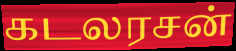
கடலரசன்